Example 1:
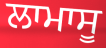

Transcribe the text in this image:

ਲਾਮਾਸੂ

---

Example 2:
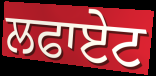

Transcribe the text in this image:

ਲਫਾਏਟ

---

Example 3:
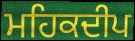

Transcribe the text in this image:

ਮਹਿਕਦੀਪ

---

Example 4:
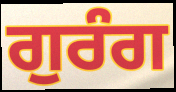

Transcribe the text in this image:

ਗੁਰੰਗ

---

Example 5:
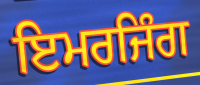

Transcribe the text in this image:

ਇਮਰਜਿੰਗ